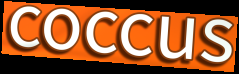
coccus